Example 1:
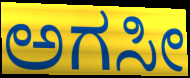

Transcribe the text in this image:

ಅಗಸೀ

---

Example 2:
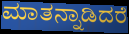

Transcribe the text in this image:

ಮಾತನ್ನಾಡಿದರೆ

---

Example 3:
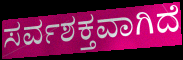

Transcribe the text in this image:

ಸರ್ವಶಕ್ತವಾಗಿದೆ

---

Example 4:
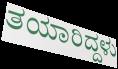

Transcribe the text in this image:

ತಯಾರಿದ್ದಳು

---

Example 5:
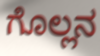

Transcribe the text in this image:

ಗೊಲ್ಲನ